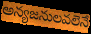
అన్యజనులవలెనే